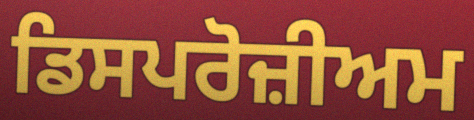
ਡਿਸਪਰੋਜ਼ੀਅਮ